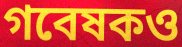
গবেষকও